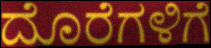
ದೊರೆಗಳಿಗೆ